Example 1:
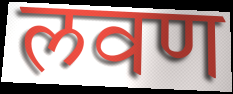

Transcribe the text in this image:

लवण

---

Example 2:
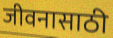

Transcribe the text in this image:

जीवनासाठी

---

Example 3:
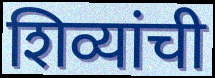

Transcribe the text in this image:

शिव्यांची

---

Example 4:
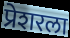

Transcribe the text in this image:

प्रेशरला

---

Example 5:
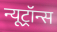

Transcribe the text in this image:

न्यूट्रॉन्स